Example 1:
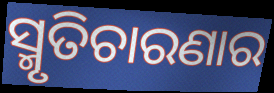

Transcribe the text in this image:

ସ୍ମୃତିଚାରଣାର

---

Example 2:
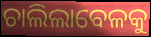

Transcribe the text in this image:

ଚାଲିଲାବେଳକୁ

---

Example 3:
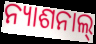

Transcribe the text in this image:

ନ୍ୟାଶନାଲ୍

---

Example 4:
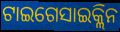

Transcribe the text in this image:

ଟାଇଗେସାଇକ୍ଲିନ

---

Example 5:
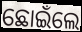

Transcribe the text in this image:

ଛୋଇଁଲେ